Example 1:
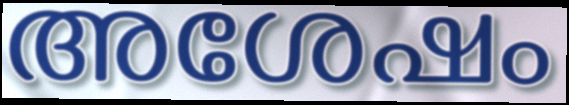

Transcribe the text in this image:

അശേഷം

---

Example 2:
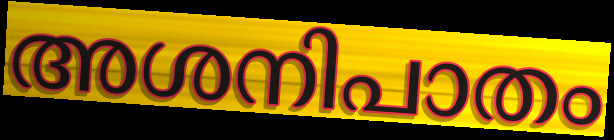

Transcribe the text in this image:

അശനിപാതം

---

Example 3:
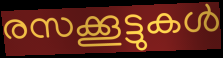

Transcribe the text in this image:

രസക്കൂട്ടുകൾ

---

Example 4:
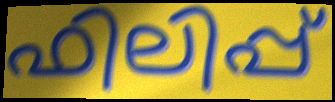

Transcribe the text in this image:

ഫിലിപ്പ്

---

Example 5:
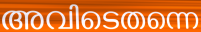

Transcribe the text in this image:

അവിടെതന്നെ